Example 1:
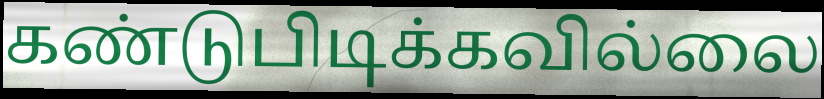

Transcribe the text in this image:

கண்டுபிடிக்கவில்லை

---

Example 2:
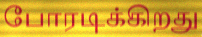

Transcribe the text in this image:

போரடிக்கிறது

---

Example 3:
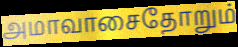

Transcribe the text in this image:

அமாவாசைதோறும்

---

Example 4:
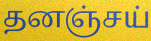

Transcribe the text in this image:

தனஞ்சய்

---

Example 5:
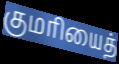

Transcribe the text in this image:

குமரியைத்